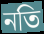
নতি